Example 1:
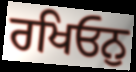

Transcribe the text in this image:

ਰਖਿਓਨੁ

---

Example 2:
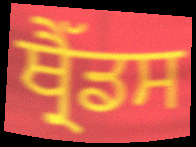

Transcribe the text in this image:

ਥ੍ਰੈੱਡਸ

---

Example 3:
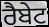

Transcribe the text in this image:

ਰੈਬੇਟ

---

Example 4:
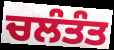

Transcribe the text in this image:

ਚਲੰਤੰਤ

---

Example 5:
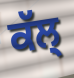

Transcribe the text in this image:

ਕੱਲ੍